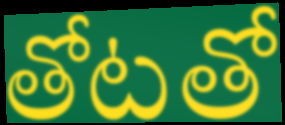
తోటతో